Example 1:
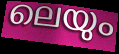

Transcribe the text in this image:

ലെയും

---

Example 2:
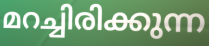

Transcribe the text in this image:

മറച്ചിരിക്കുന്ന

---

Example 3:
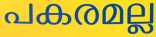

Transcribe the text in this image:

പകരമല്ല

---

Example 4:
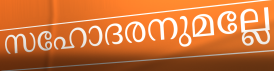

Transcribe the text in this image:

സഹോദരനുമല്ലേ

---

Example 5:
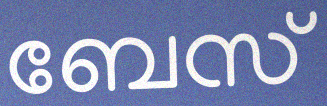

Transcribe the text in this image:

ബേസ്